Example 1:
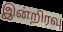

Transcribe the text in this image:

இன்றிரவு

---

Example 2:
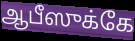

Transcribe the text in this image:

ஆபீஸுக்கே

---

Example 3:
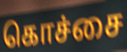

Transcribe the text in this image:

கொச்சை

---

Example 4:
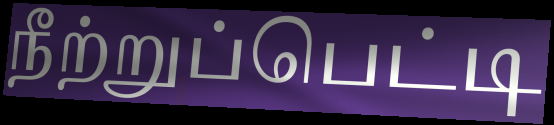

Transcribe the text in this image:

நீற்றுப்பெட்டி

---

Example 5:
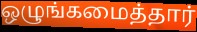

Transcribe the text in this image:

ஒழுங்கமைத்தார்